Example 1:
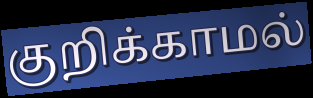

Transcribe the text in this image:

குறிக்காமல்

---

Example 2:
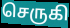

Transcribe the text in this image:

செருகி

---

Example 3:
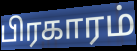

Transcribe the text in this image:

பிரகாரம்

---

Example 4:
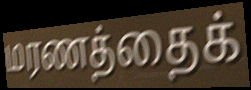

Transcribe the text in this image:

மரணத்தைக்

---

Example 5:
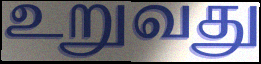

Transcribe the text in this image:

உறுவது